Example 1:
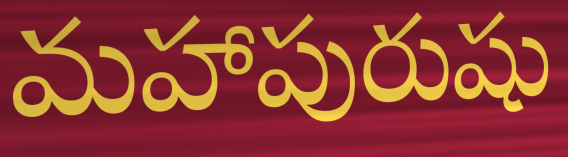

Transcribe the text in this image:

మహాపురుషు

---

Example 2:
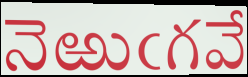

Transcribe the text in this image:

నెఱుఁగవే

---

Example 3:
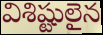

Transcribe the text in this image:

విశిష్టులైన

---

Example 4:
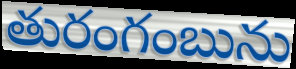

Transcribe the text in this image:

తురంగంబును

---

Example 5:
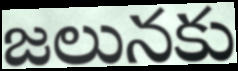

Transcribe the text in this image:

జలునకు